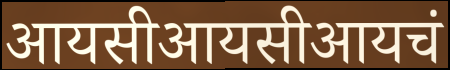
आयसीआयसीआयचं